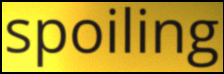
spoiling